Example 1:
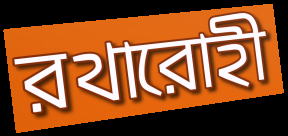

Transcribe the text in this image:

রথারোহী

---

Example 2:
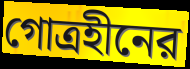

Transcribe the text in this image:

গোত্রহীনের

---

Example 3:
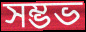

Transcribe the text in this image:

সম্ভভ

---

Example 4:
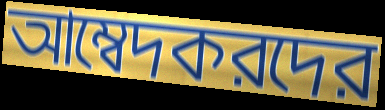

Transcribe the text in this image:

আম্বেদকরদের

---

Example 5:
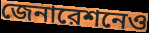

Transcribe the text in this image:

জেনারেশনেও